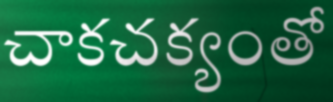
చాకచక్యంతో